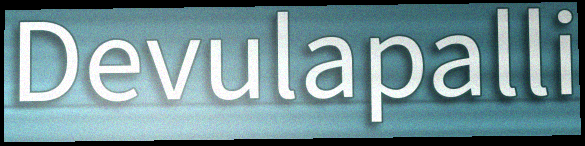
Devulapalli